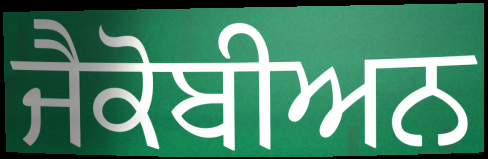
ਜੈਕੋਬੀਅਨ